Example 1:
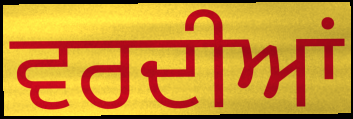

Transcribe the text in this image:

ਵਰਦੀਆਂ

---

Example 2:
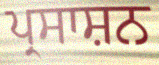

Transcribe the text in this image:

ਪ੍ਰਸਾਸ਼ਨ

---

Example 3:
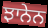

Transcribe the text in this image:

ਝਾਨੇਨ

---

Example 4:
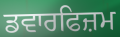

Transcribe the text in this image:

ਡਵਾਰਫਿਜ਼ਮ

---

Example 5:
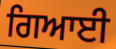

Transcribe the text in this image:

ਗਿਆਈ